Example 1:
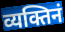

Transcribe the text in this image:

व्यक्तिनं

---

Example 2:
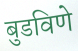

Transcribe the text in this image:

बुडविणे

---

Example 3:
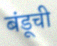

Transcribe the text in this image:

बंडूची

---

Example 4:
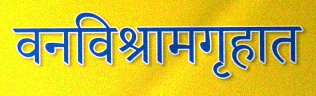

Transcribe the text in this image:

वनविश्रामगृहात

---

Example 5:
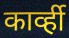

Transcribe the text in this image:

कार्व्ही